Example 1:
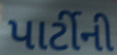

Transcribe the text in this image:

પાર્ટીની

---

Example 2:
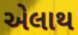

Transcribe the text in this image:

એલાથ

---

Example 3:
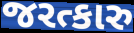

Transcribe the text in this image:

જરત્કારુ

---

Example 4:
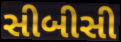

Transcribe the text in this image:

સીબીસી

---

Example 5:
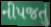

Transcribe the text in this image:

નીપજતું